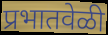
प्रभातवेळी